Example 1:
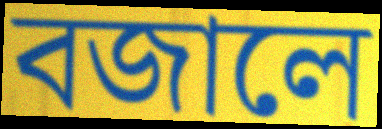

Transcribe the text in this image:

বজালে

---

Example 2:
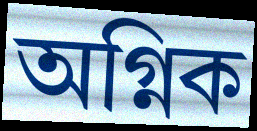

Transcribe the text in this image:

অগ্নিক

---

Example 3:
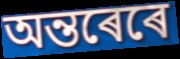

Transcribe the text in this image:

অন্তৰেৰে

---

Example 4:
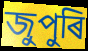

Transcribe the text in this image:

জুপুৰি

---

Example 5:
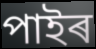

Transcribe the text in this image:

পাইৰ